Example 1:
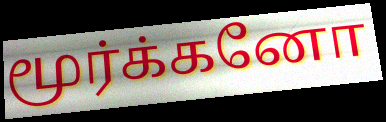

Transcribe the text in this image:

மூர்க்கனோ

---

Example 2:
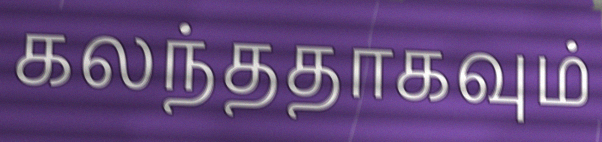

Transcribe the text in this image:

கலந்ததாகவும்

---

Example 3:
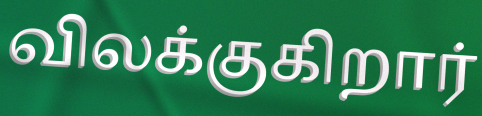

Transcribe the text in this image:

விலக்குகிறார்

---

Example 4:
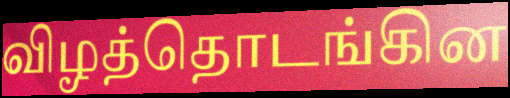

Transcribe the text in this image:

விழத்தொடங்கின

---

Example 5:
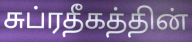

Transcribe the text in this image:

சுப்ரதீகத்தின்